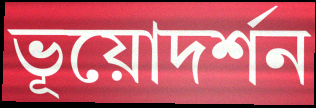
ভূয়োদর্শন